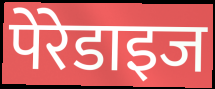
पेरेडाइज